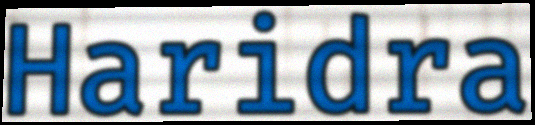
Haridra